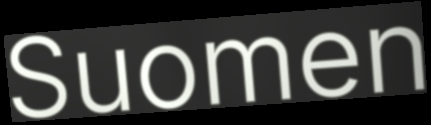
Suomen